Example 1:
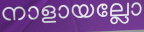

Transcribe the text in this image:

നാളായല്ലോ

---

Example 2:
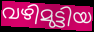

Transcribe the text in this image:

വഴിമുട്ടിയ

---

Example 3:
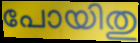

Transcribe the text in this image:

പോയിതു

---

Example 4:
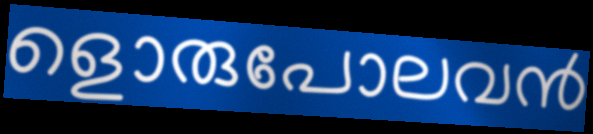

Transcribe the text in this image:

ളൊരുപോലവൻ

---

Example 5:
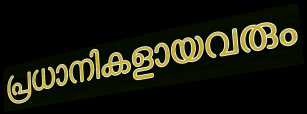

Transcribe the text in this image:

പ്രധാനികളായവരും